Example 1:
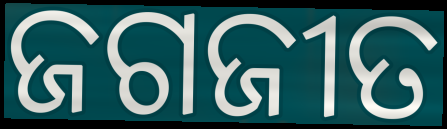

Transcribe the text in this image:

ଜଗଜୀତ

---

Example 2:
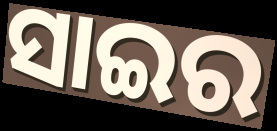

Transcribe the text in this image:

ସାଇର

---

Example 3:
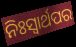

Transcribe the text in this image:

ନିଃସ୍ୱାର୍ଥପର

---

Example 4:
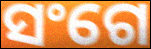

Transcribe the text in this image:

ସଂଗେ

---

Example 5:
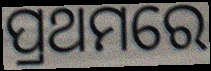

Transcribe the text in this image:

ପ୍ରଥମରେ